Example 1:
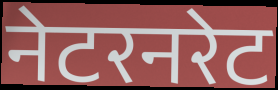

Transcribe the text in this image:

नेटरनरेट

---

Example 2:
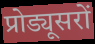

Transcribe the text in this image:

प्रोड्यूसरों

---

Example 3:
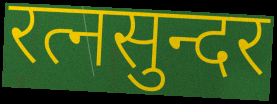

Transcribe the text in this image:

रत्नसुन्दर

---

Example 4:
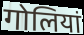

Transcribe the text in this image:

गोलियां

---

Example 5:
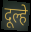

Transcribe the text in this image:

दूल्हे